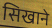
सिखाने